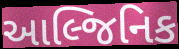
આલ્જિનિક